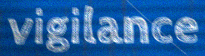
vigilance